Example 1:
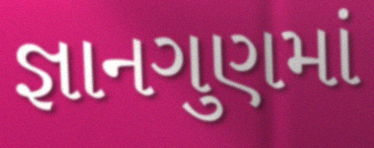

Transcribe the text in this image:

જ્ઞાનગુણમાં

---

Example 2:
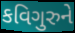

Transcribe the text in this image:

કવિગુરુને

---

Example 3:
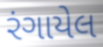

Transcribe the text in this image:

રંગાયેલ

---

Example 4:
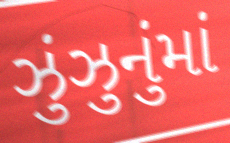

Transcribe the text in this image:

ઝુંઝુનુંમાં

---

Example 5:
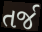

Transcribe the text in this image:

તર્જ